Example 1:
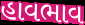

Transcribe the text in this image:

હાવભાવ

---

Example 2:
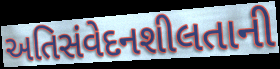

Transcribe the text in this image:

અતિસંવેદનશીલતાની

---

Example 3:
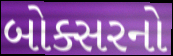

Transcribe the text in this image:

બોક્સરનો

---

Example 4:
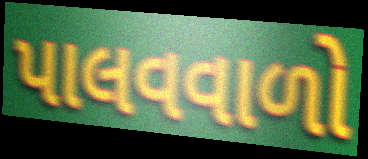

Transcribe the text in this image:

પાલવવાળો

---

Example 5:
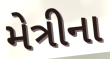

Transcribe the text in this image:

મેત્રીના